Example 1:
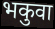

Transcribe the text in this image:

भकुवा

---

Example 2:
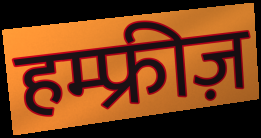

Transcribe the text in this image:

हम्फ्रीज़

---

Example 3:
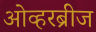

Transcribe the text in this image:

ओव्हरब्रीज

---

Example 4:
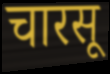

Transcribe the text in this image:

चारसू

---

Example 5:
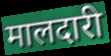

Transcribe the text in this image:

मालदारी